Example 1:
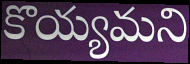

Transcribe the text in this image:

కొయ్యమని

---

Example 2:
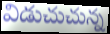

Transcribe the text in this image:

విడుచుచున్న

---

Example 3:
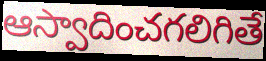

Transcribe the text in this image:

ఆస్వాదించగలిగితే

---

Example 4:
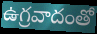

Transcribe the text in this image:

ఉగ్రవాదంతో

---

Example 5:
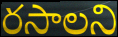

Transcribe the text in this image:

రసాలని